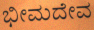
ಭೀಮದೇವ